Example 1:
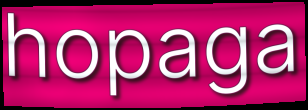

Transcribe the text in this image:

hopaga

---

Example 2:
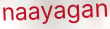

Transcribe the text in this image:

naayagan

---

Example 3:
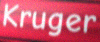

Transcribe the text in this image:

Kruger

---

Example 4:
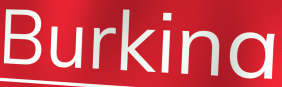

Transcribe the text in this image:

Burkina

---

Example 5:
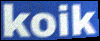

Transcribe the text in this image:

koik